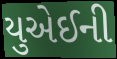
યુએઈની